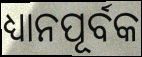
ଧ୍ୟାନପୂର୍ବକ